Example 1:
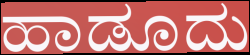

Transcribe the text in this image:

ಹಾಡೂದು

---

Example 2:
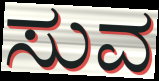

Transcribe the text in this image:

ಸುವ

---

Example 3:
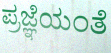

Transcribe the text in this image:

ಪ್ರಜ್ಞೆಯಂತೆ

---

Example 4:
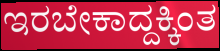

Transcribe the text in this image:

ಇರಬೇಕಾದ್ದಕ್ಕಿಂತ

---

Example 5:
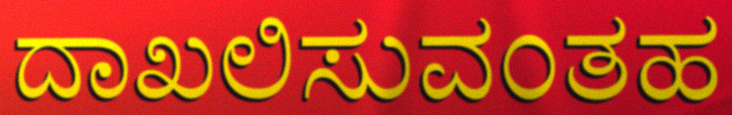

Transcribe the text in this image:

ದಾಖಲಿಸುವಂತಹ